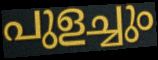
പുളച്ചും